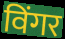
विंगर